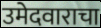
उमेदवाराचा